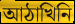
আঠাখিনি